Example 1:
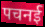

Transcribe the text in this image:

पचनई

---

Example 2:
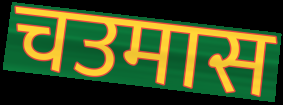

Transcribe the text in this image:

चउमास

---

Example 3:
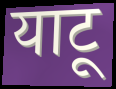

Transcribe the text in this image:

याटू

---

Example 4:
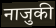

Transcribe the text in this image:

नाजुकी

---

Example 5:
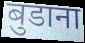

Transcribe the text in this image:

बुडाना